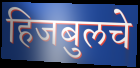
हिजबुलचे